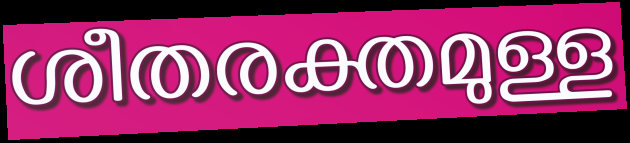
ശീതരക്തമുള്ള